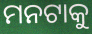
ମନଟାକୁ